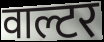
वाल्टर